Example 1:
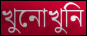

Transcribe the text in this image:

খুনোখুনি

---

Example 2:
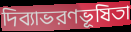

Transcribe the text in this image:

দিব্যাভরণভূষিতা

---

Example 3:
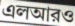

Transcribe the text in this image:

এলআরও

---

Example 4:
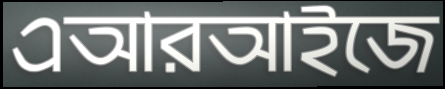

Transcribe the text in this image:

এআরআইজে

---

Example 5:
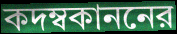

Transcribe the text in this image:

কদম্বকাননের